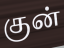
குன்